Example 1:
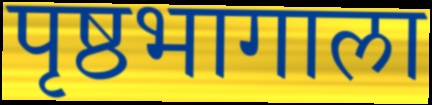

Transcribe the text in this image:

पृष्ठभागाला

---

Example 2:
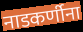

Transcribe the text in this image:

नाडकर्णीना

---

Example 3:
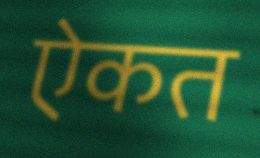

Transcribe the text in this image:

ऐकत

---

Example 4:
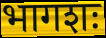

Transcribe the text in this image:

भागशः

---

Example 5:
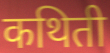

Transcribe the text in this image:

कथिती